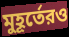
মুহূর্তেরও